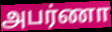
அபர்ணா